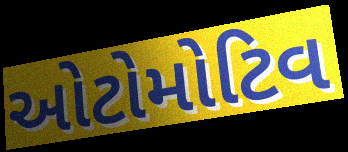
ઓટોમોટિવ